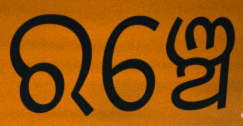
ରଞ୍ଚେ